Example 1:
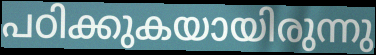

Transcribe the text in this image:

പഠിക്കുകയായിരുന്നു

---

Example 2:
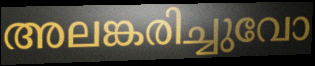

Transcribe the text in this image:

അലങ്കരിച്ചുവോ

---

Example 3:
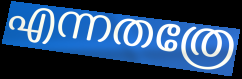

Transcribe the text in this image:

എന്നതത്രേ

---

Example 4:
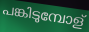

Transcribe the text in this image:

പങ്കിടുമ്പോള്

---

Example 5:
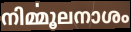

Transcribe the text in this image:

നിൎമ്മൂലനാശം